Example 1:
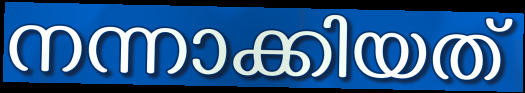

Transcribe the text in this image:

നന്നാക്കിയത്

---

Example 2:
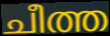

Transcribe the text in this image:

ചീത്ത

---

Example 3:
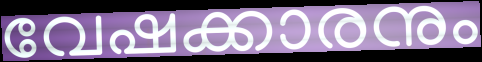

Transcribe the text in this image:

വേഷക്കാരനും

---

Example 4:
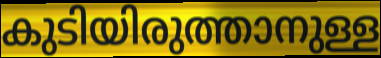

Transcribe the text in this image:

കുടിയിരുത്താനുള്ള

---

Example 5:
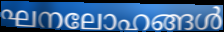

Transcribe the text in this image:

ഘനലോഹങ്ങൾ